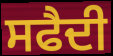
ਸਫੈਦੀ